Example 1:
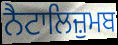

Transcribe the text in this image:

ਨੈਟਾਲਿਜ਼ੁਮਬ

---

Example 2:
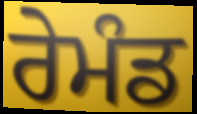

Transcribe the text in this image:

ਰੇਮੰਡ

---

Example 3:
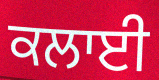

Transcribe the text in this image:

ਕਲਾਈ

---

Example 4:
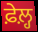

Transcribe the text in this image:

ਫ਼ੇਲ਼੍ਹ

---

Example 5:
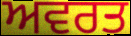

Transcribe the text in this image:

ਅਵਰਤ